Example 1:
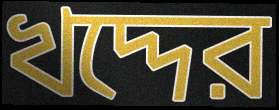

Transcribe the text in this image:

খদ্দের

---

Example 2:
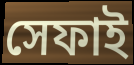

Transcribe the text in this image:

সেফাই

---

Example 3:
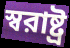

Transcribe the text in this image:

স্বরাষ্ট্র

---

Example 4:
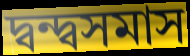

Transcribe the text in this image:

দ্বন্দ্বসমাস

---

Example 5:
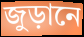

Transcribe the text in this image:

জুড়ানে